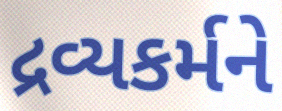
દ્રવ્યકર્મને